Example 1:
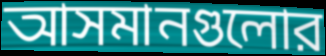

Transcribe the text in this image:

আসমানগুলোর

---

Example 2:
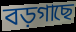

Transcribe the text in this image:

বড়গাছে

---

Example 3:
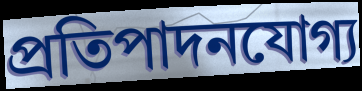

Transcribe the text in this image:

প্রতিপাদনযোগ্য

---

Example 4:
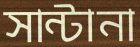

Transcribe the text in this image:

সান্টানা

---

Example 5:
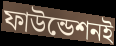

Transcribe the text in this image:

ফাউন্ডেশনই